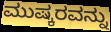
ಮುಷ್ಕರವನ್ನು